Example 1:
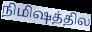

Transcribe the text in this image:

நிமிஷத்தில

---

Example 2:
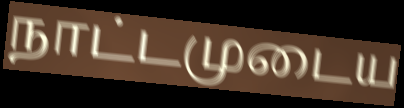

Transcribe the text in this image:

நாட்டமுடைய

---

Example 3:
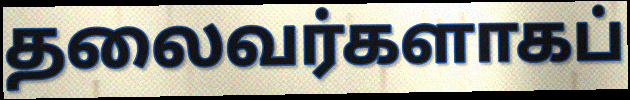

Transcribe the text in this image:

தலைவர்களாகப்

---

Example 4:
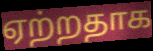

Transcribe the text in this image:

ஏற்றதாக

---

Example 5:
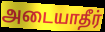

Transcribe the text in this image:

அடையாதீர்